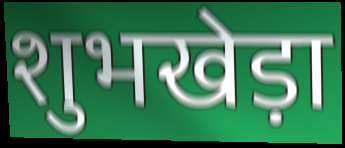
शुभखेड़ा